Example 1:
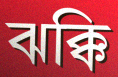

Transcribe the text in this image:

ঝক্কি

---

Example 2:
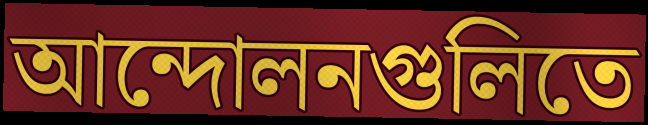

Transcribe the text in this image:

আন্দোলনগুলিতে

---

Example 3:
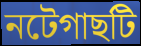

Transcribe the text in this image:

নটেগাছটি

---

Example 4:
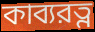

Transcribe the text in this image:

কাব্যরত্ন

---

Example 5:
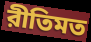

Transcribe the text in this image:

রীতিমত